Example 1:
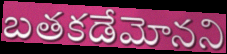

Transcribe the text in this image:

బతకడేమోనని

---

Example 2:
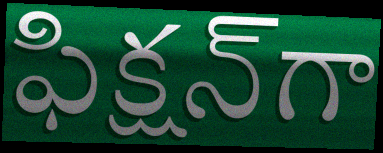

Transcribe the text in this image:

ఫిక్షన్‌గా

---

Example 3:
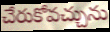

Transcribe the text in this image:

చేరుకోవచ్చును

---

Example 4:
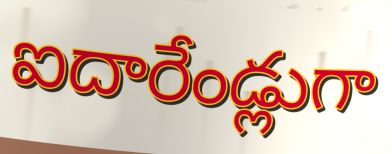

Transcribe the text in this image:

ఐదారేండ్లుగా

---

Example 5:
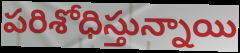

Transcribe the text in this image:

పరిశోధిస్తున్నాయి